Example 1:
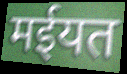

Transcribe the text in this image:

मईयत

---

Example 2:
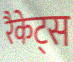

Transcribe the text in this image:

रैकेट्स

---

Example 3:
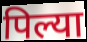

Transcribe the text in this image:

पिल्या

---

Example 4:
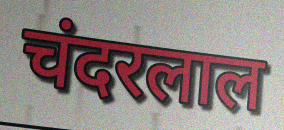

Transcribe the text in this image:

चंदरलाल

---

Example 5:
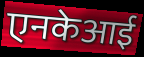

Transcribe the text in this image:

एनकेआई